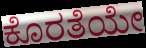
ಕೊರತೆಯೇ